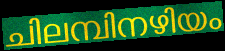
ചിലമ്പിനഴിയം